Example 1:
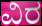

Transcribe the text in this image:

ವಿರ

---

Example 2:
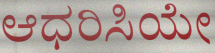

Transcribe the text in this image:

ಆಧರಿಸಿಯೇ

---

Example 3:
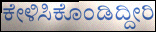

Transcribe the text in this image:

ಕೇಳಿಸಿಕೊಂಡಿದ್ದೀರಿ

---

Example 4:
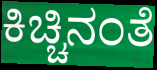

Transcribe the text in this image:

ಕಿಚ್ಚಿನಂತೆ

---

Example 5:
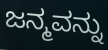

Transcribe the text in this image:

ಜನ್ಮವನ್ನು